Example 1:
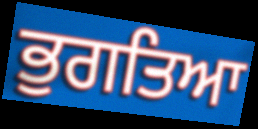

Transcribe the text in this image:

ਭੁਗਤਿਆ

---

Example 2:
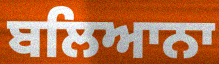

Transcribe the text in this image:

ਬਲਿਆਨਾ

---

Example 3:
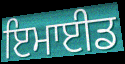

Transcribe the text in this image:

ਇਮਾਈਡ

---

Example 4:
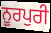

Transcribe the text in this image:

ਨੂਰਪੁਰੀ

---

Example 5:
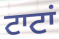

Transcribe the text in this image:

ਟਾਟਾਂ